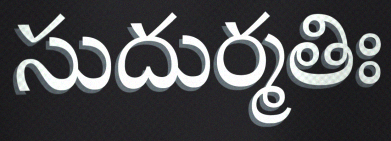
సుదుర్మతిః